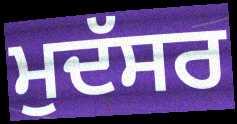
ਮੁਦੱਸਰ